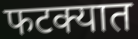
फटक्यात